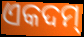
ଏକଦମ୍